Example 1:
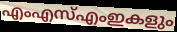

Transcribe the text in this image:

എംഎസ്എംഇകളും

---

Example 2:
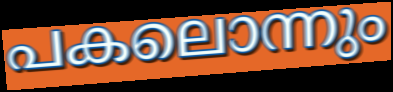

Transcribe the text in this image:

പകലൊന്നും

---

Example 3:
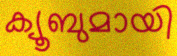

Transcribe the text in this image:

ക്യൂബുമായി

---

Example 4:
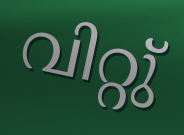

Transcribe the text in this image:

വിറ്റു്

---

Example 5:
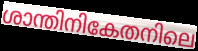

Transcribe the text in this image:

ശാന്തിനികേതനിലെ